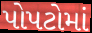
પોપટોમાં